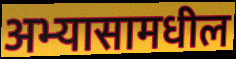
अभ्यासामधील